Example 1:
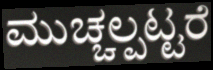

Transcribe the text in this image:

ಮುಚ್ಚಲ್ಪಟ್ಟರೆ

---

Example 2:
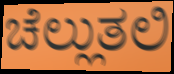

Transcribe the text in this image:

ಚೆಲ್ಲುತಲಿ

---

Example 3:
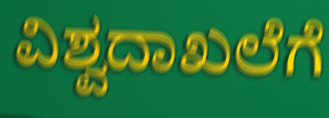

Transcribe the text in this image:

ವಿಶ್ವದಾಖಲೆಗೆ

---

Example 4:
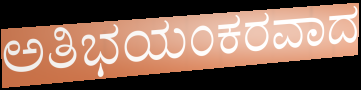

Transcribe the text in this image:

ಅತಿಭಯಂಕರವಾದ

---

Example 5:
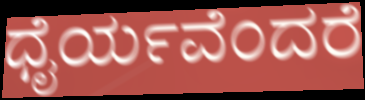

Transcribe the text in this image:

ಧೈರ್ಯವೆಂದರೆ